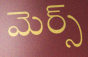
మెర్స్